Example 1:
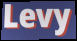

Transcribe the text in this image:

Levy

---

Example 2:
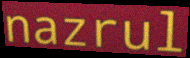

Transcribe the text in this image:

nazrul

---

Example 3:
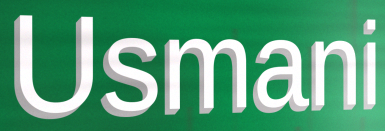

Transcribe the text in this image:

Usmani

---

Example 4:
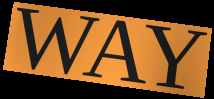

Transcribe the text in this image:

WAY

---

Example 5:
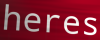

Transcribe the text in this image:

heres